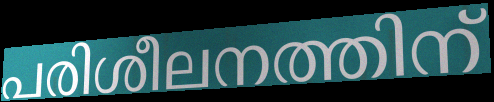
പരിശീലനത്തിന്